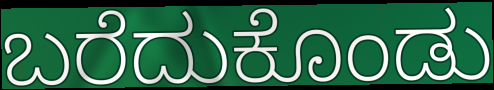
ಬರೆದುಕೊಂಡು